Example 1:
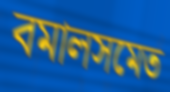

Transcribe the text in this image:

বমালসমেত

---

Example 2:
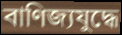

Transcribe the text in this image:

বাণিজ্যযুদ্ধে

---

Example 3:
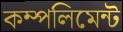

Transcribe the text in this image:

কম্পলিমেন্ট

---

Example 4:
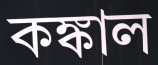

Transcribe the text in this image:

কঙ্কাল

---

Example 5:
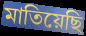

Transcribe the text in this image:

মাতিয়েছি